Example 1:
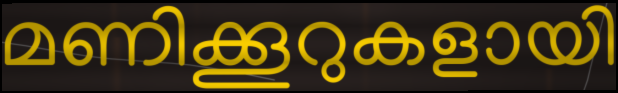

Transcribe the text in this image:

മണിക്കൂറുകളായി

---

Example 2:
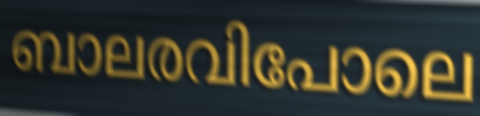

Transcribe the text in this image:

ബാലരവിപോലെ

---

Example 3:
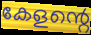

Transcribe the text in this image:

കേളന്റെ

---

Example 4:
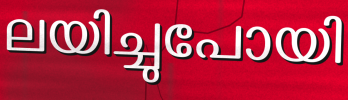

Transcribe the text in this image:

ലയിച്ചുപോയി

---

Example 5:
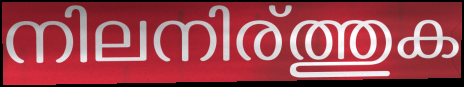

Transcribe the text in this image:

നിലനിര്ത്തുക